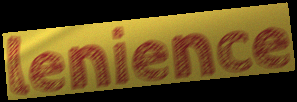
lenience